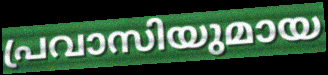
പ്രവാസിയുമായ